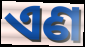
ଏଣ